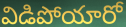
విడిపోయారో